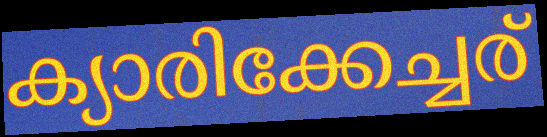
ക്യാരിക്കേച്ചര്